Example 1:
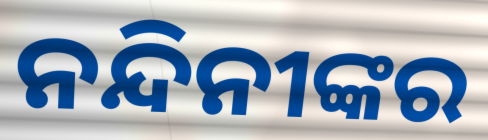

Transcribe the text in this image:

ନନ୍ଦିନୀଙ୍କର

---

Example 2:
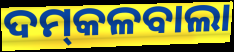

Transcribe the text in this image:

ଦମ୍‍କଳବାଲା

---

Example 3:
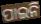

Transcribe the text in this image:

ପାଇନି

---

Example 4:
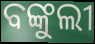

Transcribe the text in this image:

ବଙ୍କୁଲୀ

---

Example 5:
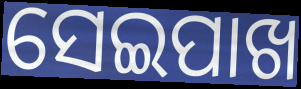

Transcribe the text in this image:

ସେଇପାଖ